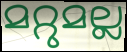
മറ്റുമല്ല